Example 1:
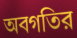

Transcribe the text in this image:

অবগতির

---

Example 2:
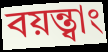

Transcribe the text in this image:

বয়ন্ত্বাং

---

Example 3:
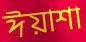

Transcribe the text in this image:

ঈয়াশা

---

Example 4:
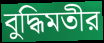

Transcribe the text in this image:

বুদ্ধিমতীর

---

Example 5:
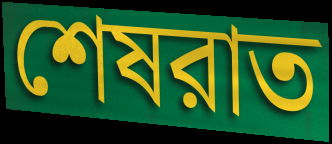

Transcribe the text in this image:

শেষরাত